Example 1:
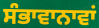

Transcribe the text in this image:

ਸੰਭਾਵਾਨਾਵਾਂ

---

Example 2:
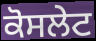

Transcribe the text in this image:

ਕੋਸਲੇਟ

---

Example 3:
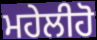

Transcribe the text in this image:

ਮਹੇਲੀਹੋ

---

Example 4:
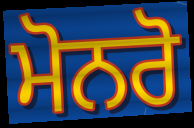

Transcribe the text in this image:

ਮੋਨਰੋ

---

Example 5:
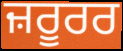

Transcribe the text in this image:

ਜ਼ਰੂਰਰ